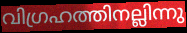
വിഗ്രഹത്തിനല്ലിന്നു